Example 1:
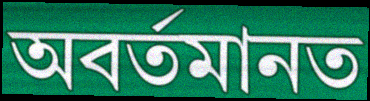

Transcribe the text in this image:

অবৰ্তমানত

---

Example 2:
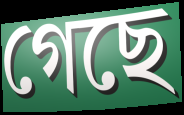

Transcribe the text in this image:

গেছে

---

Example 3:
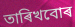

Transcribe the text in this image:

তাৰিখবোৰ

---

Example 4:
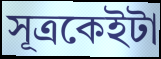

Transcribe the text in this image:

সূত্ৰকেইটা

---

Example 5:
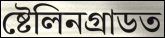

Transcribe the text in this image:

ষ্টেলিনগ্ৰাডত